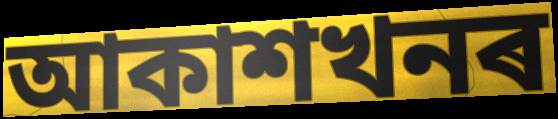
আকাশখনৰ